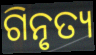
ଗିନୃତ୍ୟ